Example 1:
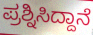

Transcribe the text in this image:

ಪ್ರಶ್ನಿಸಿದ್ದಾನೆ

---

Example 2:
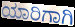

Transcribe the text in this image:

ಯಾರಿಗಾಗಿ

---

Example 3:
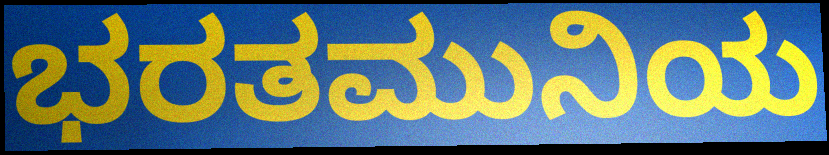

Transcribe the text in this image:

ಭರತಮುನಿಯ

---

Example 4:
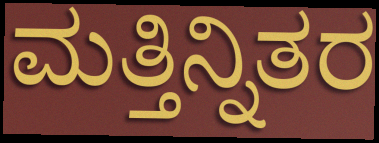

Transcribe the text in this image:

ಮತ್ತಿನ್ನಿತರ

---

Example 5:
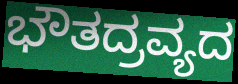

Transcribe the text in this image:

ಭೌತದ್ರವ್ಯದ